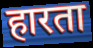
हारता